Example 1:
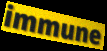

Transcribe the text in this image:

immune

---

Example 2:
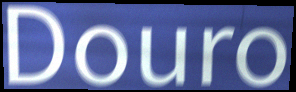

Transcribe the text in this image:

Douro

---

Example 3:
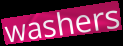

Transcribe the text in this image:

washers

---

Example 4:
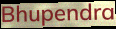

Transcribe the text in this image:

Bhupendra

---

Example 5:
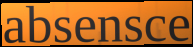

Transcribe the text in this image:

absensce